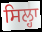
ਸਿਲ੍ਹਾ